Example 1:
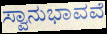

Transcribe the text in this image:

ಸ್ವಾನುಭಾವವೆ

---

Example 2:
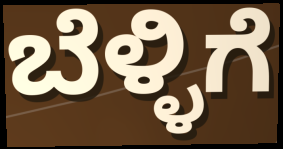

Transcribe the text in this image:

ಬೆಳ್ಳಿಗೆ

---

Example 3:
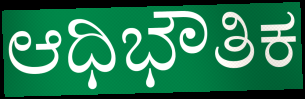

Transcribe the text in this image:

ಆಧಿಭೌತಿಕ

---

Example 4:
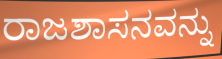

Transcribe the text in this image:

ರಾಜಶಾಸನವನ್ನು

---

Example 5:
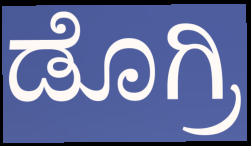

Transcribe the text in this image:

ಡೊಗ್ರಿ